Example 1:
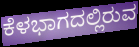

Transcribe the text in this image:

ಕೆಳಭಾಗದಲ್ಲಿರುವ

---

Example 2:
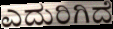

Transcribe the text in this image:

ಎದುರಿಗಿದೆ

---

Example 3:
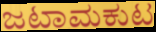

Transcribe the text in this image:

ಜಟಾಮಕುಟ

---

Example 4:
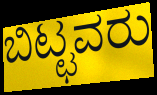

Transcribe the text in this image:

ಬಿಟ್ಟವರು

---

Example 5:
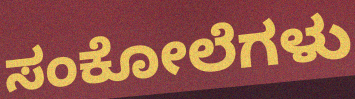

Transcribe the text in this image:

ಸಂಕೋಲೆಗಳು